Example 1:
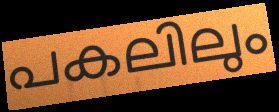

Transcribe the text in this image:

പകലിലും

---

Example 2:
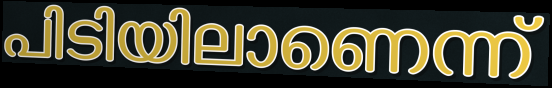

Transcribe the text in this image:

പിടിയിലാണെന്ന്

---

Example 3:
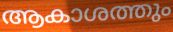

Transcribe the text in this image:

ആകാശത്തും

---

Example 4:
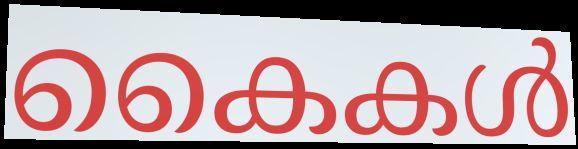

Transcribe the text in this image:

കൈകൾ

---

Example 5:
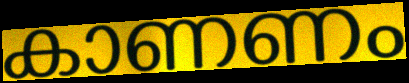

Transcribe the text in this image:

കാണണം